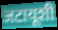
जटायूशी